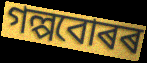
গল্পবোৰৰ